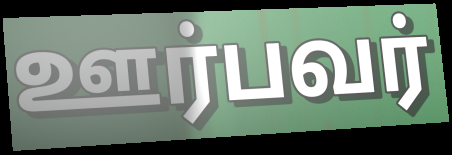
ஊர்பவர்